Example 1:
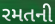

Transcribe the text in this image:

રમતની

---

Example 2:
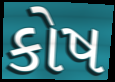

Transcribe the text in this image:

કોષ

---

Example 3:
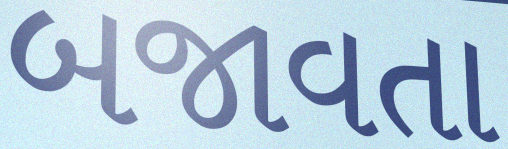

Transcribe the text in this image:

બજાવતા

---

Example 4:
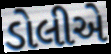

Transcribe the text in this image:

ડોલીએ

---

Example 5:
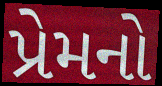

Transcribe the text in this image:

પ્રેમનો